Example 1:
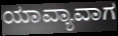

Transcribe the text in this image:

ಯಾವ್ಯಾವಾಗ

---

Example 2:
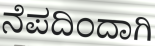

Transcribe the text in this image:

ನೆಪದಿಂದಾಗಿ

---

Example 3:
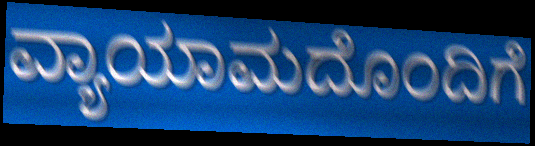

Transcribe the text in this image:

ವ್ಯಾಯಾಮದೊಂದಿಗೆ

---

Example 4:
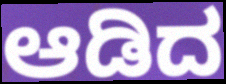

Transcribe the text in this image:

ಆಡಿದ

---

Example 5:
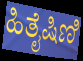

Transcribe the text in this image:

ಹಿತೈಷಿಣಿ